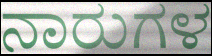
ನಾರುಗಳ